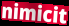
nimicit